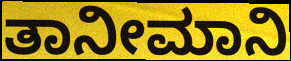
ತಾನೀಮಾನಿ